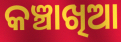
କଞ୍ଚାଖିଆ